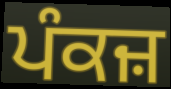
ਪੰਕਜ਼